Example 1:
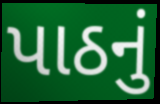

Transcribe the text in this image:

પાઠનું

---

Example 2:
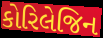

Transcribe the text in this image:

કોરિલેજિન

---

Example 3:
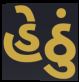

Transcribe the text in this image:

હેઠું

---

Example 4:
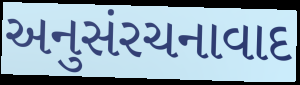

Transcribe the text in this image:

અનુસંરચનાવાદ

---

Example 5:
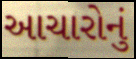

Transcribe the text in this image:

આચારોનું